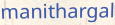
manithargal